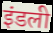
इंडली